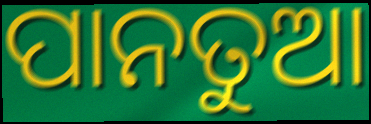
ପାନତୁଆ